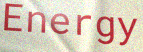
Energy